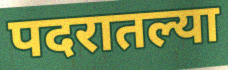
पदरातल्या